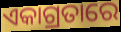
ଏକାଗ୍ରତାରେ